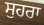
ਸੁਹਰਾ